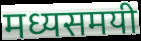
मध्यसमयी